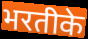
भरतीके